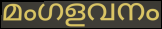
മംഗളവനം